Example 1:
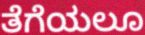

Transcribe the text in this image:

ತೆಗೆಯಲೂ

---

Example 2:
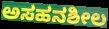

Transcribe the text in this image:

ಅಸಹನಶೀಲ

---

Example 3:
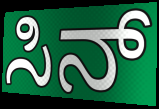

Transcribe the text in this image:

ಸಿನ್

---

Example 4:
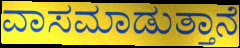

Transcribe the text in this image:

ವಾಸಮಾಡುತ್ತಾನೆ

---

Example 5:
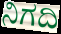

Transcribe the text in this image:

ನಿಗದಿ